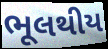
ભૂલથીય